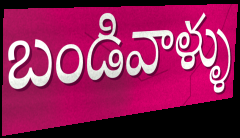
బండివాళ్ళు